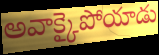
అవాక్కైపోయాడు